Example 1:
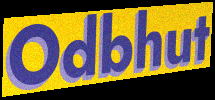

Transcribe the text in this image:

Odbhut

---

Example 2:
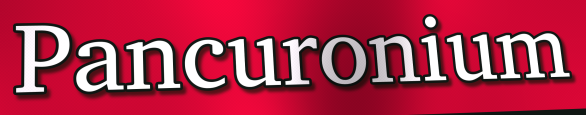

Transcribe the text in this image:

Pancuronium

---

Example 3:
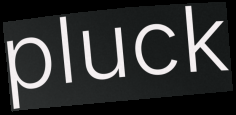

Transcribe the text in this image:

pluck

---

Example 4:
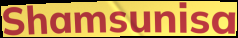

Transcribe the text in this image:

Shamsunisa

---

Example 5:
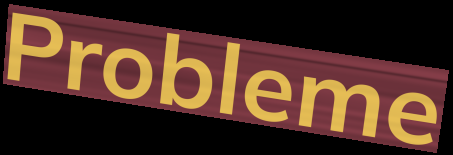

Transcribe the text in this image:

Probleme